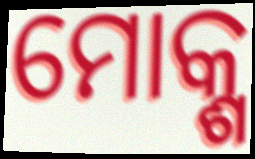
ମୋକ୍ଶ